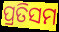
ପ୍ରତିସମ